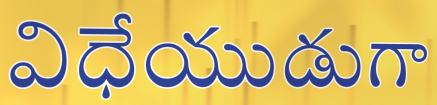
విధేయుడుగా